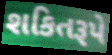
શકિતરૂપે